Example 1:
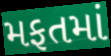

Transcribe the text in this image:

મફતમાં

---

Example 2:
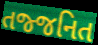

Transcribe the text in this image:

તજ્જનિત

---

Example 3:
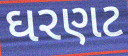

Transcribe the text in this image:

ઘરણટ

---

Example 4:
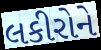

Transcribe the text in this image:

લકીરોને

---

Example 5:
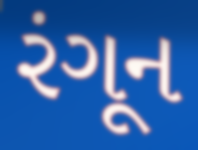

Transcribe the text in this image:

રંગૂન